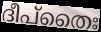
ദീപ്തൈഃ